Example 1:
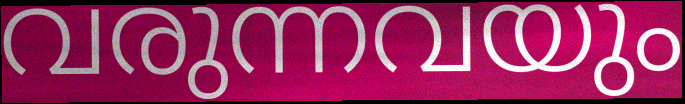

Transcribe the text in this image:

വരുന്നവയും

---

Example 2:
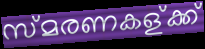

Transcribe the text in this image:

സ്മരണകള്ക്ക്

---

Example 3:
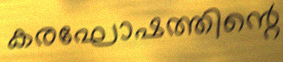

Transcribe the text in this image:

കരഘോഷത്തിന്റെ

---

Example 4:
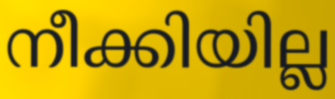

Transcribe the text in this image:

നീക്കിയില്ല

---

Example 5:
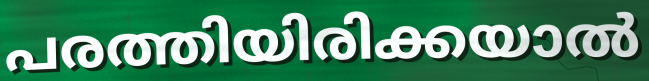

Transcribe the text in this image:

പരത്തിയിരിക്കയാൽ